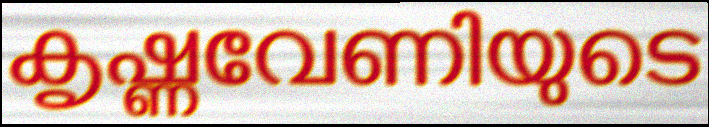
കൃഷ്ണവേണിയുടെ